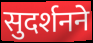
सुदर्शनने